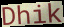
Dhik